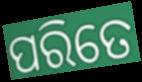
ପରିତେ